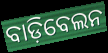
ବାଡ଼ିବେଲନ